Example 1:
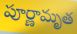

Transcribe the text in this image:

పూర్ణామృత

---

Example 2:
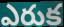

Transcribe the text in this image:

ఎరుక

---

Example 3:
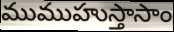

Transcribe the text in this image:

ముముహుస్తాసాం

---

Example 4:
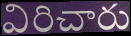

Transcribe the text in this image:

విరిచారు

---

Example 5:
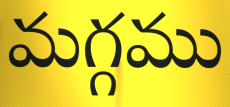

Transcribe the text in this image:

మగ్గము